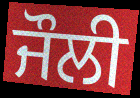
ਜੌਲੀ